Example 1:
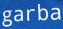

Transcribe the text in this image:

garba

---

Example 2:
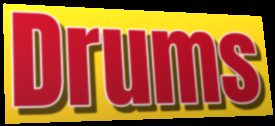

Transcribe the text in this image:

Drums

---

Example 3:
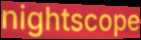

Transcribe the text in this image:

nightscope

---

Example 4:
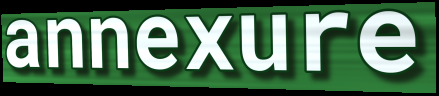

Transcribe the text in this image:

annexure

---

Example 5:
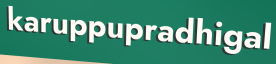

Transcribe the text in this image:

karuppupradhigal